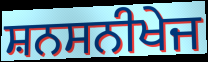
ਸ਼ਨਸਨੀਖੇਜ